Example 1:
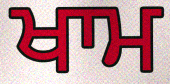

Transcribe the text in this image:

ਖਾਮ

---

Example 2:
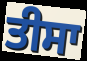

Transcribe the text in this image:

ਤੀਸਾ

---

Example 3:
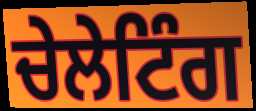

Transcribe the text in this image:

ਚੇਲੇਟਿੰਗ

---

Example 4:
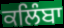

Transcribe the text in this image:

ਕਲਿੰਬਾ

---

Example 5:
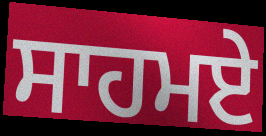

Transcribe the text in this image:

ਸਾਹਮਏ